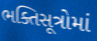
ભક્તિસૂત્રોમાં